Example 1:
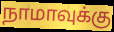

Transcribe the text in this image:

நாமாவுக்கு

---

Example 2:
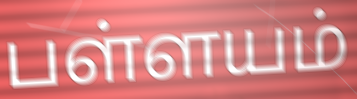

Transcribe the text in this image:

பள்ளயம்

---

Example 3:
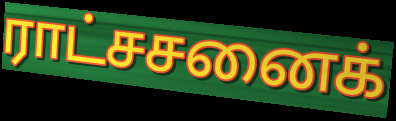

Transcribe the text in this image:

ராட்சசனைக்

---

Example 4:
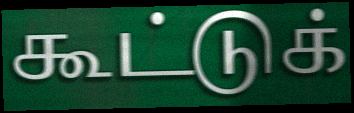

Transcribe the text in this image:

கூட்டுக்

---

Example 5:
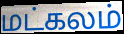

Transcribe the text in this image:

மட்கலம்